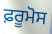
ਫ਼ਰੂਮੋਸ